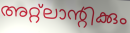
അറ്റ്ലാന്റിക്കും